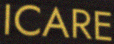
ICARE